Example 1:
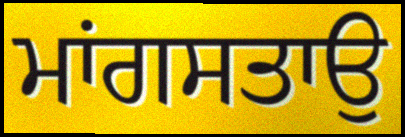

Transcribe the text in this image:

ਮਾਂਗਸਤਾਉ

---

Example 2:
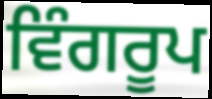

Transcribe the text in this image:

ਵਿੰਗਰੂਪ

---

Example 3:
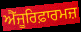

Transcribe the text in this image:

ਐੱਜੂਰਿਫ਼ਾਰਮਜ਼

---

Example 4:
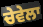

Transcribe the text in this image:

ਚੇਵੇਲਾ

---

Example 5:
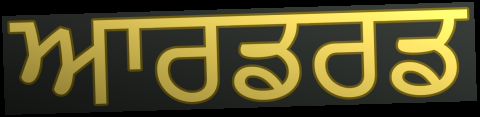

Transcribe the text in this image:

ਆਰਡਰਡ